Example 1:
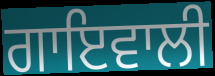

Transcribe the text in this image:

ਗਾਇਵਾਲੀ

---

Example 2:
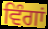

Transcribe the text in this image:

ਵਿੰਗਾਂ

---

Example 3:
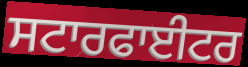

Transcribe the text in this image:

ਸਟਾਰਫਾਈਟਰ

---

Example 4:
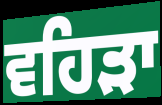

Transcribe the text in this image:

ਵਹਿੜਾ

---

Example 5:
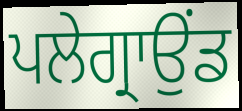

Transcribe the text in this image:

ਪਲੇਗ੍ਰਾਉਂਡ